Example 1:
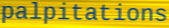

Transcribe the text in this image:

palpitations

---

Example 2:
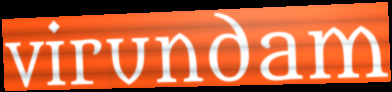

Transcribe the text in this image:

virundam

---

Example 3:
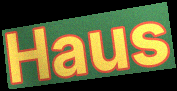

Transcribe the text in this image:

Haus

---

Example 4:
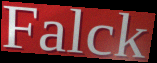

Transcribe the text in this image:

Falck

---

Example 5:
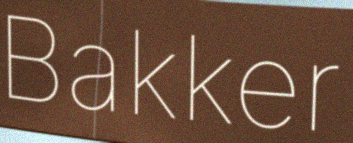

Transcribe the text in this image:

Bakker